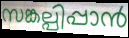
സങ്കല്പിപ്പാൻ